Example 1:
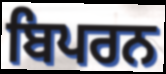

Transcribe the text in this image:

ਬਿਪਰਨ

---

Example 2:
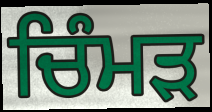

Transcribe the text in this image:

ਚਿੰਮੜ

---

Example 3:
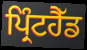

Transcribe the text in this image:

ਪ੍ਰਿੰਟਹੈੱਡ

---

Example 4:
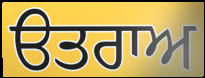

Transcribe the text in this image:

ੳਤਰਾਅ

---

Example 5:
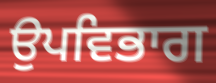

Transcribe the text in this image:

ਉਪਵਿਭਾਗ